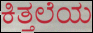
ಕಿತ್ತಲೆಯ